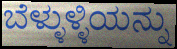
ಬೆಳ್ಳುಳ್ಳಿಯನ್ನು